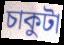
চাকুটা